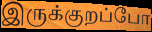
இருக்குறப்போ